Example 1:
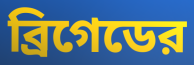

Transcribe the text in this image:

ব্রিগেডের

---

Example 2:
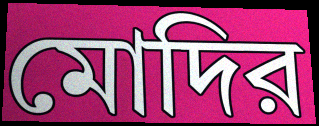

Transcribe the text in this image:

মোদির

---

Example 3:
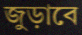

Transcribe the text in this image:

জুড়াবে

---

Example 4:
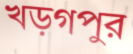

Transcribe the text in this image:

খড়গপুর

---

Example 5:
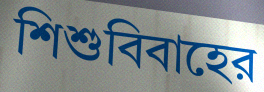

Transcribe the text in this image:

শিশুবিবাহের